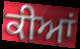
ਕੀਆਂ